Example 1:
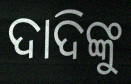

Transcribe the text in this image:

ଦାଦିଙ୍କୁ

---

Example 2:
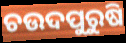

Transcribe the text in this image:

ଚଉଦପୁରୁଷି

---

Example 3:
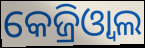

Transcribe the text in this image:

କେଜ୍ରିଓ୍ଵାଲ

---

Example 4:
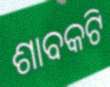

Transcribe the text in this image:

ଶାବକଟି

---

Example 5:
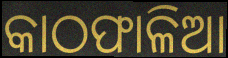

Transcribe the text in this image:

କାଠଫାଳିଆ